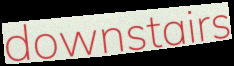
downstairs